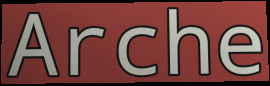
Arche